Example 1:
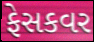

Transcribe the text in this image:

ફેસકવર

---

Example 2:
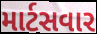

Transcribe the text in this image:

માર્ટસવાર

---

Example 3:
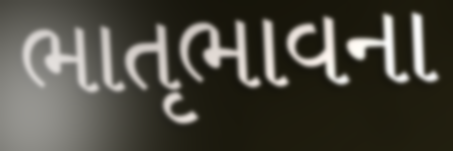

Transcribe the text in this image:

ભાતૃભાવના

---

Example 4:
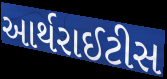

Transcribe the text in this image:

આર્થરાઈટીસ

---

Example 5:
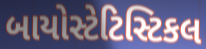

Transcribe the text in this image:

બાયોસ્ટેટિસ્ટિકલ